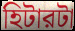
হিটারটা